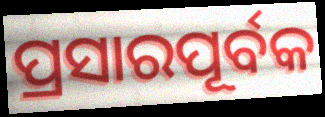
ପ୍ରସାରପୂର୍ବକ